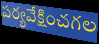
పర్యవేక్షించగల